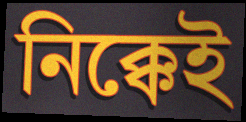
নিক্কেই